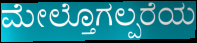
ಮೇಲ್ತೊಗಲ್ಪರೆಯ